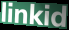
linkid